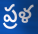
ప్రళ